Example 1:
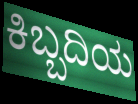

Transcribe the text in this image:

ಕಿಬ್ಬದಿಯ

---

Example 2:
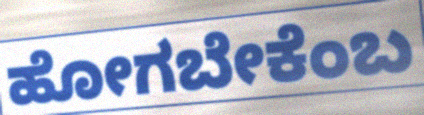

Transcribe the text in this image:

ಹೋಗಬೇಕೆಂಬ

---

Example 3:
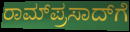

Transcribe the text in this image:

ರಾಮ್‌ಪ್ರಸಾದ್‌ಗೆ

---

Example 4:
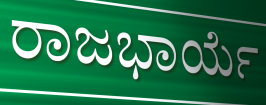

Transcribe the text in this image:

ರಾಜಭಾರ್ಯೆ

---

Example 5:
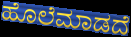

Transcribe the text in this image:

ಹೊಲೆಮಾಡದೆ